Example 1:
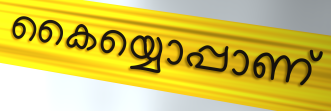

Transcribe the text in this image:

കൈയ്യൊപ്പാണ്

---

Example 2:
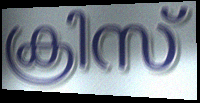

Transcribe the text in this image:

ക്രിസ്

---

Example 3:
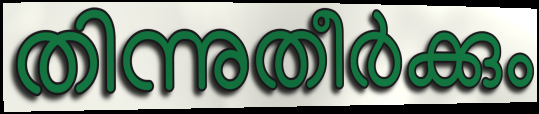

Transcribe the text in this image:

തിന്നുതീർക്കും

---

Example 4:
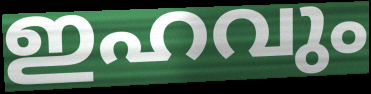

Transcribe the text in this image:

ഇഹവും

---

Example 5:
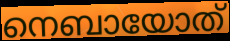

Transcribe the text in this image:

നെബായോത്